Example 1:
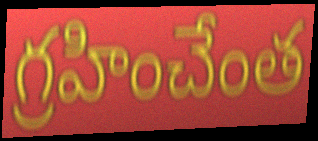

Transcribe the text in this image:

గ్రహించేంత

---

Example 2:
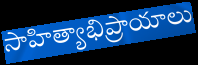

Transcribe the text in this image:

సాహిత్యాభిప్రాయాలు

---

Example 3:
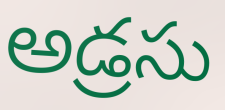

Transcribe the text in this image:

అడ్రసు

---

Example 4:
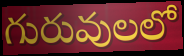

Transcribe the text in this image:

గురువులలో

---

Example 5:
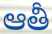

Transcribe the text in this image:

ఆతీ